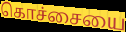
கொச்சையை